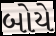
બોયે